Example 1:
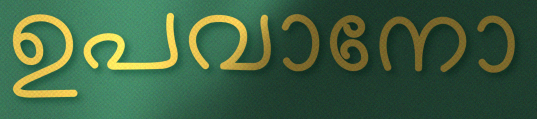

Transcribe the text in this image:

ഉപവാനോ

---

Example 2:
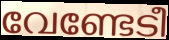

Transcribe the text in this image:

വേണ്ടേടീ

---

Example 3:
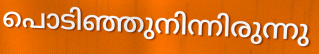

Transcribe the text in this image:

പൊടിഞ്ഞുനിന്നിരുന്നു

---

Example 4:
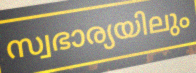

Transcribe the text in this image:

സ്വഭാര്യയിലും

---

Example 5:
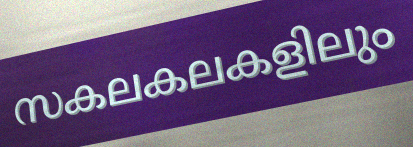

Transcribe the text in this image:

സകലകലകളിലും